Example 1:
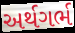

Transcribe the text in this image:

અર્થગર્ભ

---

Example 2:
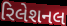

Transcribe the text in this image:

રિલેશનલ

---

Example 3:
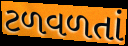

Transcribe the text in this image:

ટળવળતાં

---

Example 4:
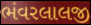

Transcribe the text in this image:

ભંવરલાલજી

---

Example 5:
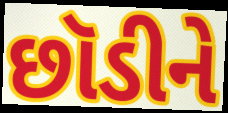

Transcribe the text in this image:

છૉડીને